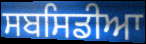
ਸਬਸਿਡੀਆ